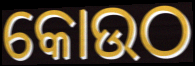
କୋଉଠ